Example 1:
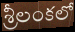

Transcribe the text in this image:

శ్రీలంకలో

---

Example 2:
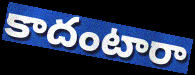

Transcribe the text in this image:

కాదంటారా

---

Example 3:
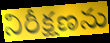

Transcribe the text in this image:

నిరీక్షణను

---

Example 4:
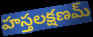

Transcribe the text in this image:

హస్తలక్షణమ్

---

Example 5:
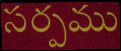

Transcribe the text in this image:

సర్పము